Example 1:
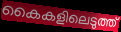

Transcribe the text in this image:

കൈകളിലെടുത്ത്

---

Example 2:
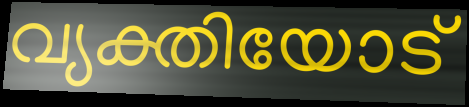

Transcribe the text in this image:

വ്യക്തിയോട്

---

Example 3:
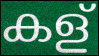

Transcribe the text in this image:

കള്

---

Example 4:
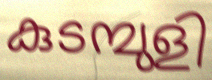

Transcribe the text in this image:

കുടമ്പുളി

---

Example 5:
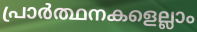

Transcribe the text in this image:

പ്രാർത്ഥനകളെല്ലാം